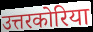
उत्तरकोरिया